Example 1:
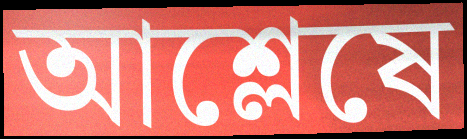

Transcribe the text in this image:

আশ্লেষে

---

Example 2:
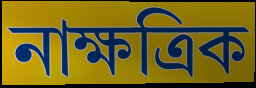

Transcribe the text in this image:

নাক্ষত্রিক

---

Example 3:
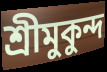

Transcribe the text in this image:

শ্রীমুকুন্দ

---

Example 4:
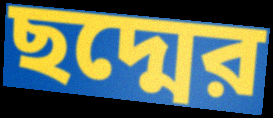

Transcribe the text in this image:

ছদ্মের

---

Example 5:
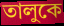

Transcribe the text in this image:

তালুকে